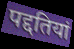
पद्दतियां